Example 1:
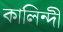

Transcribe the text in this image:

কালিন্দী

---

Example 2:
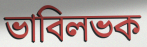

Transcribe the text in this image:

ভাবিলভক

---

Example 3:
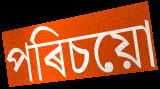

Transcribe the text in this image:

পৰিচয়ো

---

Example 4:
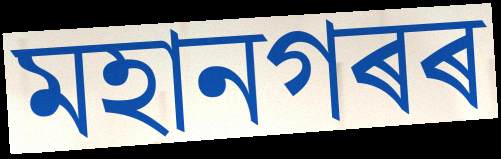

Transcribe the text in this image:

মহানগৰৰ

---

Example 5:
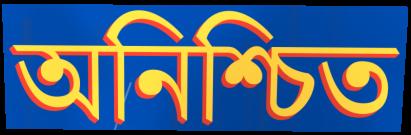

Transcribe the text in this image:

অনিশ্চিত